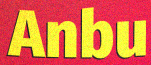
Anbu